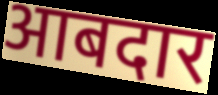
आबदार